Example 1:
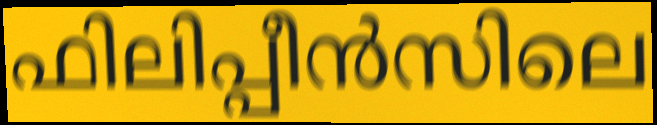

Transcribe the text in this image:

ഫിലിപ്പീൻസിലെ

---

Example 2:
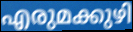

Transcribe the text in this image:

എരുമക്കുഴി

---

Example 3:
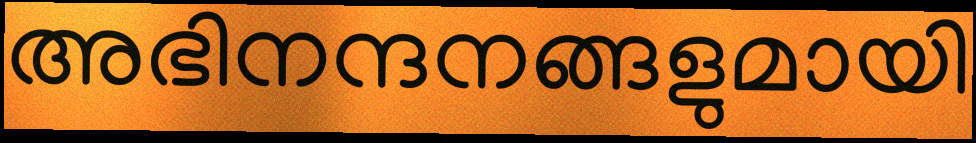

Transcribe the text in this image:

അഭിനന്ദനങ്ങളുമായി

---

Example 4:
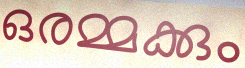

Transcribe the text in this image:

ഒരമ്മക്കും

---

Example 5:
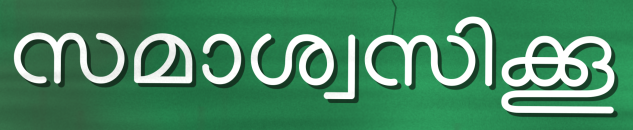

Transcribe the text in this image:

സമാശ്വസിക്കൂ